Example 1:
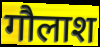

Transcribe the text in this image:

गौलाश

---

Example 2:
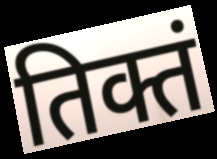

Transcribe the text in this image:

तिक्तं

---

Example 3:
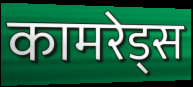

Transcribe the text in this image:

कामरेड्स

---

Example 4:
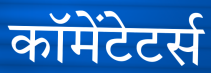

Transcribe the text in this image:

कॉमेंटेटर्स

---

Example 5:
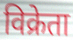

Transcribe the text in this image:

विक्रेता